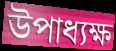
উপাধ্যক্ষ